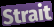
Strait